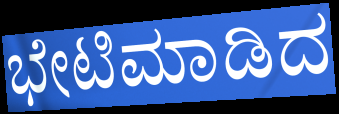
ಭೇಟಿಮಾಡಿದ